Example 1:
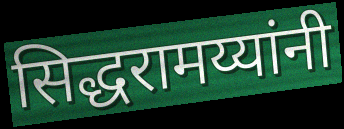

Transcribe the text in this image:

सिद्धरामय्यांनी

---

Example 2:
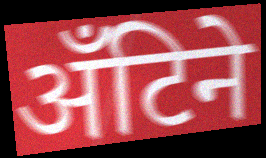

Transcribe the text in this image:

अँटिने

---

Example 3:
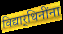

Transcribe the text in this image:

विद्यार्थिनींना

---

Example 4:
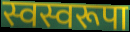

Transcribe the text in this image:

स्वस्वरूपा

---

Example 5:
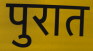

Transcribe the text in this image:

पुरात